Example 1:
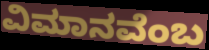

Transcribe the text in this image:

ವಿಮಾನವೆಂಬ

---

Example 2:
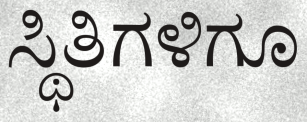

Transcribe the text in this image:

ಸ್ಥಿತಿಗಳಿಗೂ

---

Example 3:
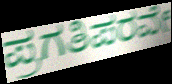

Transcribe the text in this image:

ಪ್ರಗತಿಪರವೇ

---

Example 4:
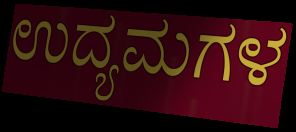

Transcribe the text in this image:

ಉದ್ಯಮಗಳ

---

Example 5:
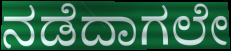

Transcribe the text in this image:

ನಡೆದಾಗಲೇ